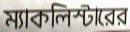
ম্যাকলিস্টারের